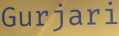
Gurjari